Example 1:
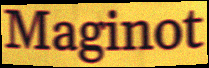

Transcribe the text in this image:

Maginot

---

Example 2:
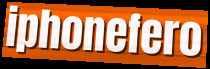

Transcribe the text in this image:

iphonefero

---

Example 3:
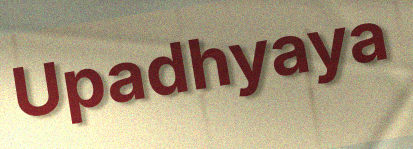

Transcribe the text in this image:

Upadhyaya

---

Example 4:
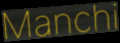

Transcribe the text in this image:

Manchi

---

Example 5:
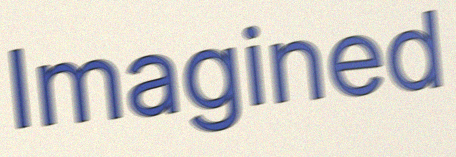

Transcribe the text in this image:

Imagined